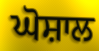
ਘੋਸ਼ਾਲ